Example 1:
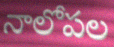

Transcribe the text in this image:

నాలోపల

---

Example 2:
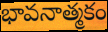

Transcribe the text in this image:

భావనాత్మకం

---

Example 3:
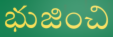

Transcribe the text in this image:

భుజించి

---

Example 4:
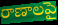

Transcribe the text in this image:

రాణాలపై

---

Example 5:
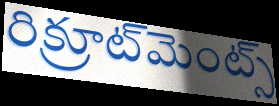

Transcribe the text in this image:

రిక్రూట్‌మెంట్స్